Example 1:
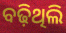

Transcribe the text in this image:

ବଢ଼ିଥିଲି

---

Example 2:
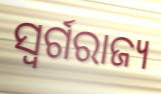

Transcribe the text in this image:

ସ୍ୱର୍ଗରାଜ୍ୟ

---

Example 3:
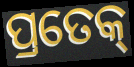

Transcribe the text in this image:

ପ୍ରତେକ୍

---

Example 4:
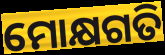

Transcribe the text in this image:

ମୋକ୍ଷଗତି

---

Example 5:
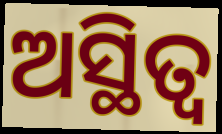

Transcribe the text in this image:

ଅସ୍ଥିତ୍ଵ